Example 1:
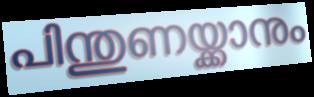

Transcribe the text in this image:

പിന്തുണയ്ക്കാനും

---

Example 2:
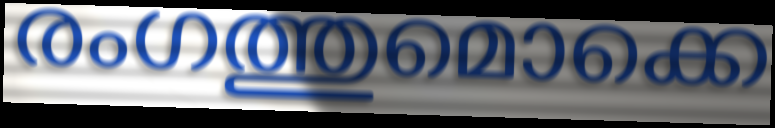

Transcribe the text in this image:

രംഗത്തുമൊക്കെ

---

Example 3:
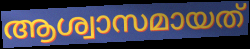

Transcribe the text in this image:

ആശ്വാസമായത്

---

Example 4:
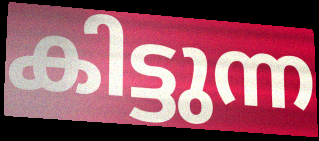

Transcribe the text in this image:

കിട്ടുന്ന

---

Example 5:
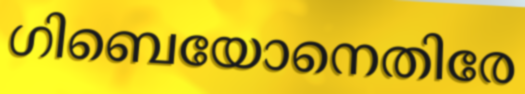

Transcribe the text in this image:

ഗിബെയോനെതിരേ